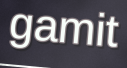
gamit